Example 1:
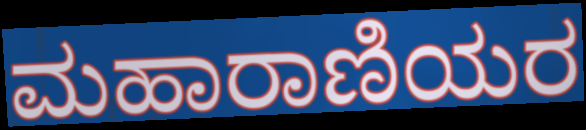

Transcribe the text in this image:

ಮಹಾರಾಣಿಯರ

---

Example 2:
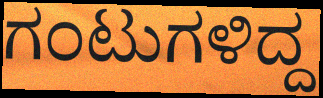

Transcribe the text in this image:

ಗಂಟುಗಳಿದ್ದ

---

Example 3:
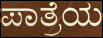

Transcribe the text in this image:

ಪಾತ್ರೆಯ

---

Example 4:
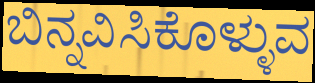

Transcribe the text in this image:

ಬಿನ್ನವಿಸಿಕೊಳ್ಳುವ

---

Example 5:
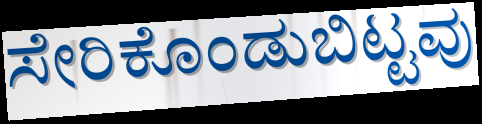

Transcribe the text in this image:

ಸೇರಿಕೊಂಡುಬಿಟ್ಟವು